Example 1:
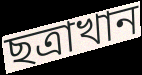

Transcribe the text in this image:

ছত্রাখান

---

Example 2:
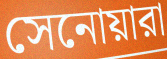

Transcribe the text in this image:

সেনোয়ারা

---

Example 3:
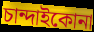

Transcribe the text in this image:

চান্দাইকোনা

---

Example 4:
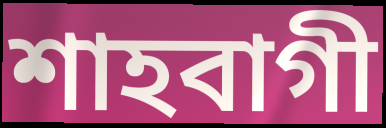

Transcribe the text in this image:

শাহবাগী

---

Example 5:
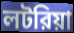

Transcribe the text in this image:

লটরিয়া